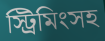
স্ট্রিমিংসহ